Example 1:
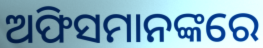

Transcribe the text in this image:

ଅଫିସମାନଙ୍କରେ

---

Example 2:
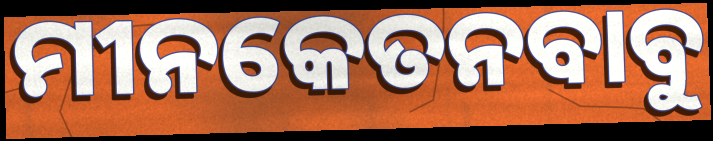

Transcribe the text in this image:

ମୀନକେତନବାବୁ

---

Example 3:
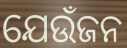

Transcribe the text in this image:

ଯେଉଁଜନ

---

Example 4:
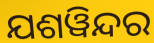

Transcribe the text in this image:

ଯଶୱିନ୍ଦର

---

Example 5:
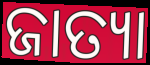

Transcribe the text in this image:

ଜାତ୍ୟା